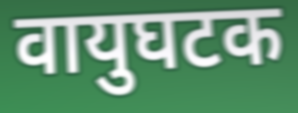
वायुघटक